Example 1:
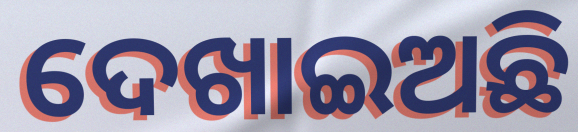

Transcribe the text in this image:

ଦେଖାଇଅଛି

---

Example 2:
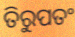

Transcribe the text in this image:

ତିରୁପତଂ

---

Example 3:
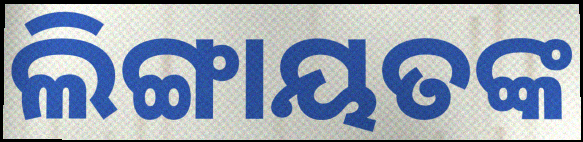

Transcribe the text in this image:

ଲିଙ୍ଗାୟତଙ୍କ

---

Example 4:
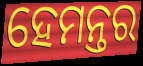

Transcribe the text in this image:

ହେମନ୍ତର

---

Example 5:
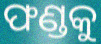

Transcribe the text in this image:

ଫଣ୍ଡକୁ